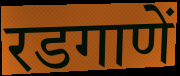
रडगाणें